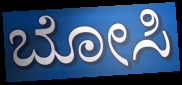
ಬೋಸಿ